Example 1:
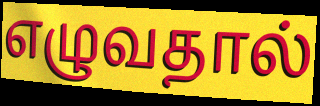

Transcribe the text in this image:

எழுவதால்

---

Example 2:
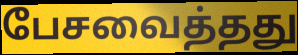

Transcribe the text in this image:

பேசவைத்தது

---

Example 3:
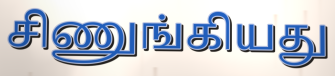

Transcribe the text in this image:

சிணுங்கியது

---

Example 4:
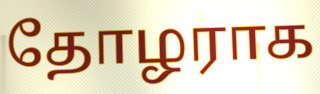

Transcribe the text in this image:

தோழராக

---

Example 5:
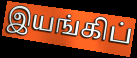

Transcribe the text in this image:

இயங்கிப்